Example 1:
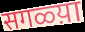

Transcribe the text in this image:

सगळ्य़ा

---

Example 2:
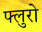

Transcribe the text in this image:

फ्लुरो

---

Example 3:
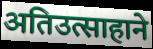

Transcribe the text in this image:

अतिउत्साहाने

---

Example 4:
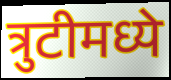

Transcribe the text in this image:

त्रुटीमध्ये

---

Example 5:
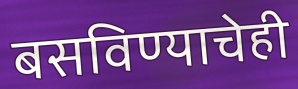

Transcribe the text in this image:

बसविण्याचेही